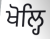
ਖੋਲ੍ਹਿ